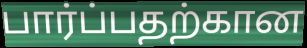
பார்ப்பதற்கான